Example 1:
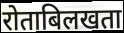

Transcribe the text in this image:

रोताबिलखता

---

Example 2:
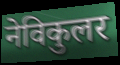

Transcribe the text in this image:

नेविकुलर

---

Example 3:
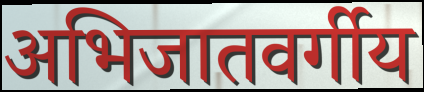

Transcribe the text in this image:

अभिजातवर्गीय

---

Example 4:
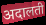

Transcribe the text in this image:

अदालती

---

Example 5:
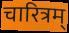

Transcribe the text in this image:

चारित्रम्